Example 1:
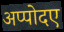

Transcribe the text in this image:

अप्पोदए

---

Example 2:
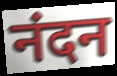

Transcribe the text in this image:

नंदन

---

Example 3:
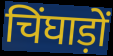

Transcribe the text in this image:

चिंघाड़ों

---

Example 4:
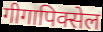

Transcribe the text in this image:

गीगापिक्सेल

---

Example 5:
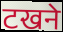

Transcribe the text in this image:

टखने